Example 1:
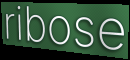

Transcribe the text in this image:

ribose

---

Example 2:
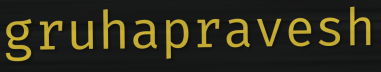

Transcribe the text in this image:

gruhapravesh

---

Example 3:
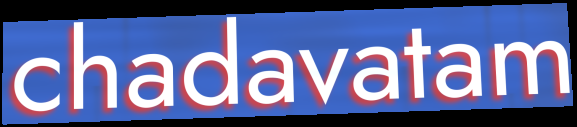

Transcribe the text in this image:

chadavatam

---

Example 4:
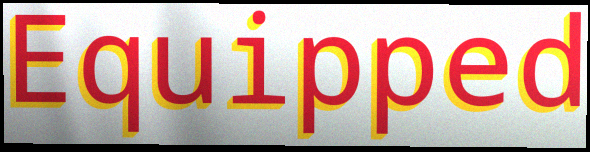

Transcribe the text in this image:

Equipped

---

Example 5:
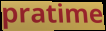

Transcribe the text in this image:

pratime